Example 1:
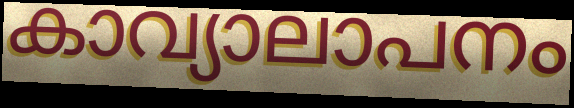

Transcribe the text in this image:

കാവ്യാലാപനം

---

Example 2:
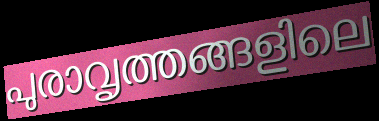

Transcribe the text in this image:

പുരാവൃത്തങ്ങളിലെ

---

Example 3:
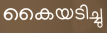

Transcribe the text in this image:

കൈയടിച്ചു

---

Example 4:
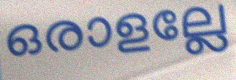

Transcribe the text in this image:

ഒരാളല്ലേ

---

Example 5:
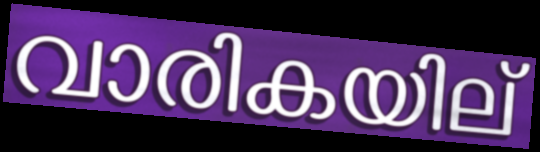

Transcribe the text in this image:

വാരികയില്